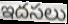
ఇదసలు